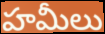
హమీలు